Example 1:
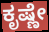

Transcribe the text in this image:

ಕೃಷ್ಣೇ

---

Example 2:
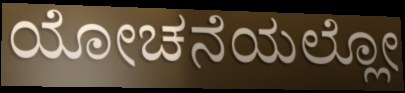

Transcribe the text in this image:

ಯೋಚನೆಯಲ್ಲೋ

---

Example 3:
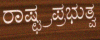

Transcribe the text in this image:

ರಾಷ್ಟ್ರಪ್ರಭುತ್ವ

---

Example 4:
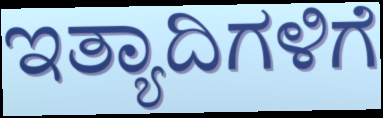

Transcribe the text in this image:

ಇತ್ಯಾದಿಗಳಿಗೆ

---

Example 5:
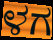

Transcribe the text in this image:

ಳಗ